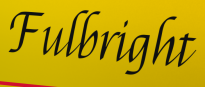
Fulbright